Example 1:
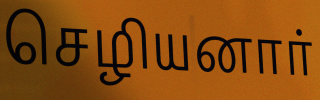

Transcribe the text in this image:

செழியனார்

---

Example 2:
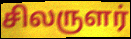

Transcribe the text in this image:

சிலருளர்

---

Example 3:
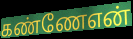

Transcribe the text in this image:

கண்ணேஎன்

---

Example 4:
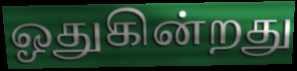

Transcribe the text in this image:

ஓதுகின்றது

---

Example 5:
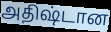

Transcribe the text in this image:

அதிஷ்டான